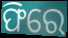
ଫିରେ